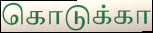
கொடுக்கா